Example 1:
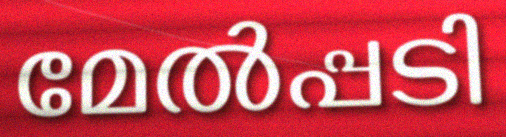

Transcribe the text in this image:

മേൽപ്പടി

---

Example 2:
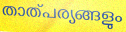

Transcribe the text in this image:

താത്പര്യങ്ങളും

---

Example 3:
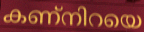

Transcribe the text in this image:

കണ്നിറയെ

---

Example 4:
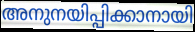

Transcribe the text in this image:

അനുനയിപ്പിക്കാനായി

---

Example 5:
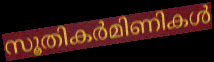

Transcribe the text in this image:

സൂതികർമിണികൾ